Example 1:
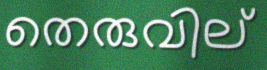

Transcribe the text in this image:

തെരുവില്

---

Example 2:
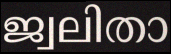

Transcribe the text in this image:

ജ്വലിതാ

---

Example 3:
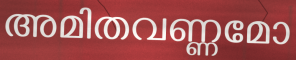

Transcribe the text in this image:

അമിതവണ്ണമോ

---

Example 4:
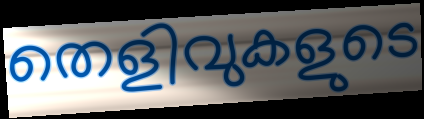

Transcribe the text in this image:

തെളിവുകളുടെ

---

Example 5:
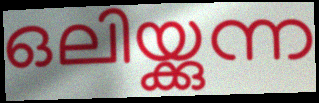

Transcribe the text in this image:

ഒലിയ്ക്കുന്ന